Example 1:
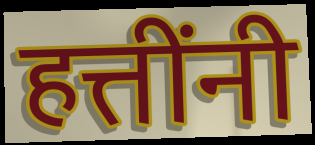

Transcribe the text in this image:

हत्तींनी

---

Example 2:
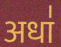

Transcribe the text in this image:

अधा॑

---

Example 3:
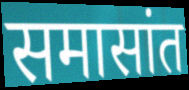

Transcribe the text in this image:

समासांत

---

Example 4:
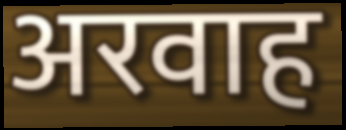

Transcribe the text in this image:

अरवाह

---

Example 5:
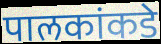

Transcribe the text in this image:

पालकांकडे